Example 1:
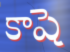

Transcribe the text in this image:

కాషె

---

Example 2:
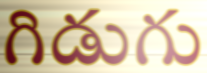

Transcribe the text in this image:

గిడుగు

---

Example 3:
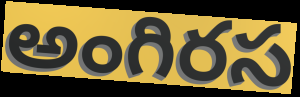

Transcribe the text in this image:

అంగిరస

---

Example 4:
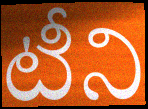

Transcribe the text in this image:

టీని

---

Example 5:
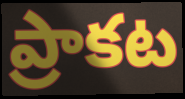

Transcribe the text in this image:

ప్రాకట